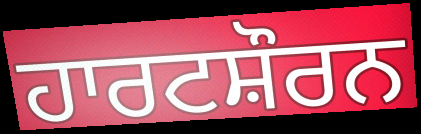
ਹਾਰਟਸ਼ੌਰਨ